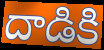
దాడికి